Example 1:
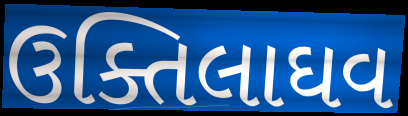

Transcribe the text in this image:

ઉક્તિલાઘવ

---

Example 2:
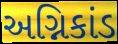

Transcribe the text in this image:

અગ્નિકાંડ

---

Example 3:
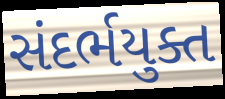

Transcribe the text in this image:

સંદર્ભયુક્ત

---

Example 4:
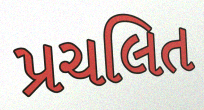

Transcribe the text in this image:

પ્રચલિત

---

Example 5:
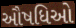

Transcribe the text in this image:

ઔષધિઓ